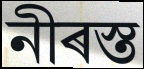
নীৰস্ত